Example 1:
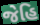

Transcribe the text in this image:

જેહિ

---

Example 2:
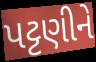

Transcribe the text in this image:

પટ્ટણીને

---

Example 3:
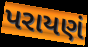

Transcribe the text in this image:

પરાયણં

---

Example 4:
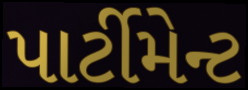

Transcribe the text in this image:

પાર્ટીમેન્ટ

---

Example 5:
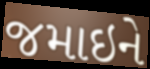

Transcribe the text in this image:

જમાઇને